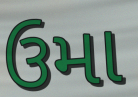
ઉમા